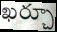
ఖర్చూ